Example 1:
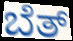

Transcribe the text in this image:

ಬೆತ್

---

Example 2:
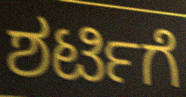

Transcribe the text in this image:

ಶರ್ಟಿಗೆ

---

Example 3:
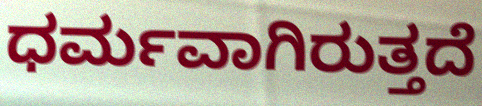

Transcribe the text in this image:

ಧರ್ಮವಾಗಿರುತ್ತದೆ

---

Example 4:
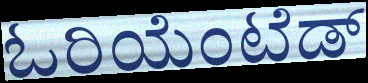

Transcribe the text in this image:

ಓರಿಯೆಂಟೆಡ್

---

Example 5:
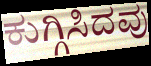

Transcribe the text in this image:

ಕುಗ್ಗಿಸಿದವು